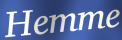
Hemme